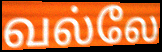
வல்லே